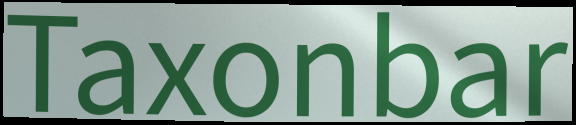
Taxonbar